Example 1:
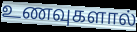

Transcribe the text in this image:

உணவுகளால்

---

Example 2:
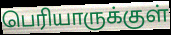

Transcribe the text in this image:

பெரியாருக்குள்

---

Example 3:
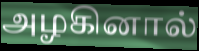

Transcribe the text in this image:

அழகினால்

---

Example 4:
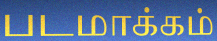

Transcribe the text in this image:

படமாக்கம்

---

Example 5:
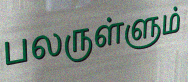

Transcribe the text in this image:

பலருள்ளும்